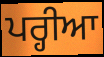
ਪਰ੍ਹੀਆ